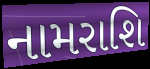
નામરાશિ